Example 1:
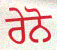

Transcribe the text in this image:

ਰੇਨੋ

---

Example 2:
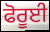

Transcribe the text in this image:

ਫੋਰੂਈ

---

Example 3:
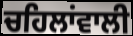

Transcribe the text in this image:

ਚਹਿਲਾਂਵਾਲੀ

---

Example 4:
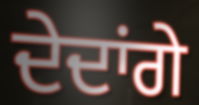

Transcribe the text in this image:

ਦੇਦਾਂਗੇ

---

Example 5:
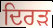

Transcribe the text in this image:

ਦਿਰੜ